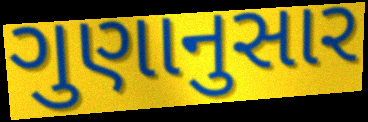
ગુણાનુસાર